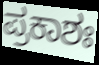
ಪ್ರಕಾಶಃ